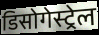
डिसोगेस्ट्रेल